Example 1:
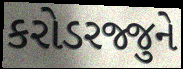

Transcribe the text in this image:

કરોડરજ્જુને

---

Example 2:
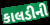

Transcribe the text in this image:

કાલડીની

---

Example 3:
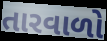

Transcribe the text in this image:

તારવાળો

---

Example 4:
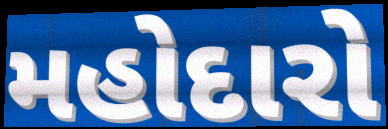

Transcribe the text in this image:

મહોદારો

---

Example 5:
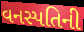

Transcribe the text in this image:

વનસ્પતિની